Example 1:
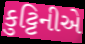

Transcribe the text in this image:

કુટ્ટિનીએ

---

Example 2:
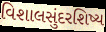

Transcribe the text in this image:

વિશાલસુંદરશિષ્ય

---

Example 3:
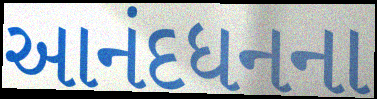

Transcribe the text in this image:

આનંદધનના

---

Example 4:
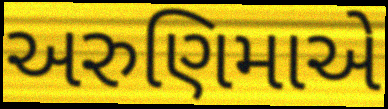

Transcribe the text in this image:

અરુણિમાએ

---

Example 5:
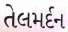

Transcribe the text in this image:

તેલમર્દન